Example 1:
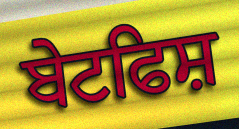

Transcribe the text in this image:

ਬੇਟਫਿਸ਼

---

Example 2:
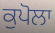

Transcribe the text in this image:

ਕੁਪੋਲਾ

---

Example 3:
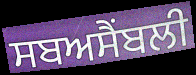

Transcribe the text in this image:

ਸਬਅਸੈਂਬਲੀ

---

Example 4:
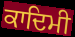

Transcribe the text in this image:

ਕਾਦਿਮੀ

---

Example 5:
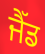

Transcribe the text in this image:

ਜੈੱਡ